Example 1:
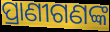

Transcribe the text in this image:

ପ୍ରାଣୀଗଣଙ୍କ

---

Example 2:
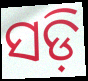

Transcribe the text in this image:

ସଡ଼ି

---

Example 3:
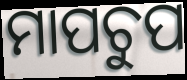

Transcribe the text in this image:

ମାପଚୁପ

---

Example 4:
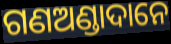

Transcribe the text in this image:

ଗଣଅଣ୍ଡାଦାନେ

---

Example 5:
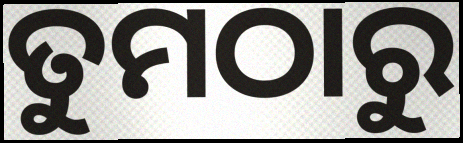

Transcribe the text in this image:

ତୁମଠାରୁ